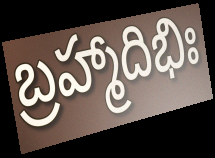
బ్రహ్మాదిభిః